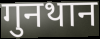
गुनथान